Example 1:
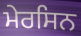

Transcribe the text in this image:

ਮੇਰਸਿਨ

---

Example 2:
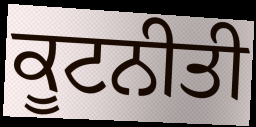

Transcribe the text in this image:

ਕੂਟਨੀਤੀ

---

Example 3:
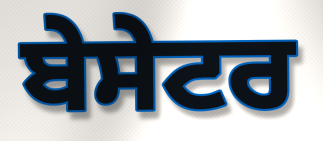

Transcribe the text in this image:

ਬੇਸੇਟਰ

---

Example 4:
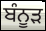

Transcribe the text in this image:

ਬੰਨੂੜ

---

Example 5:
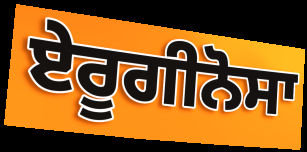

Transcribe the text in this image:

ਏਰੂਗੀਨੋਸਾ